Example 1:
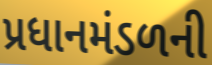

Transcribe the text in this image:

પ્રધાનમંડળની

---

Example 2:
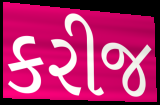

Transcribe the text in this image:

કરીજ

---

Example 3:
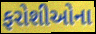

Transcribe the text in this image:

ફરોશીઓના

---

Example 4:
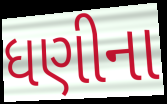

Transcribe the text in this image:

ધણીના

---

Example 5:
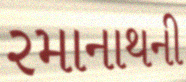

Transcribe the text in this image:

રમાનાથની